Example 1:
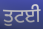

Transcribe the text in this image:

ਤੁਟਈ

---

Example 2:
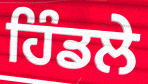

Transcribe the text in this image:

ਹਿੰਡਲੇ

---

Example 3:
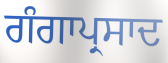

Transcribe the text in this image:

ਗੰਗਾਪ੍ਰਸਾਦ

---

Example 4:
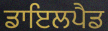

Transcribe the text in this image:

ਡਾਇਲਪੈਡ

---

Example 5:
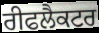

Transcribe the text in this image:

ਰੀਫਲੈਕਟਰ